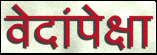
वेदांपेक्षा